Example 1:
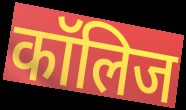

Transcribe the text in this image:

कॉलिज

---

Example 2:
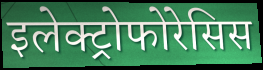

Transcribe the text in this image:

इलेक्ट्रोफोरेसिस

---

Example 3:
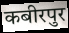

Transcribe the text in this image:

कबीरपुर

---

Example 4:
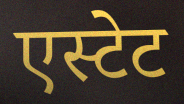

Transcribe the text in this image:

एस्टेट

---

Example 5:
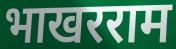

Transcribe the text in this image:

भाखरराम